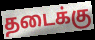
தடைக்கு